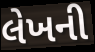
લેખની